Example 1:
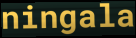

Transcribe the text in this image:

ningala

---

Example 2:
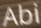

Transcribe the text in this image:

Abi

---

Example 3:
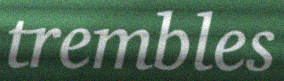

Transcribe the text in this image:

trembles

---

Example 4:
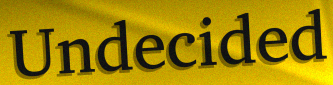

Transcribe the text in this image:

Undecided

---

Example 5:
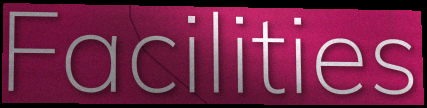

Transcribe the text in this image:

Facilities